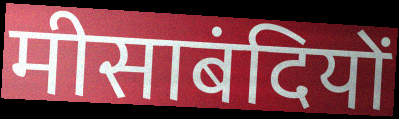
मीसाबंदियों